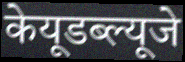
केयूडब्ल्यूजे